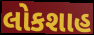
લોકશાહ